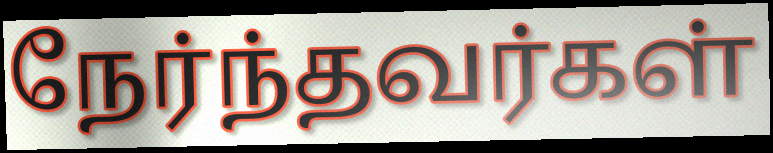
நேர்ந்தவர்கள்